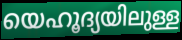
യെഹൂദ്യയിലുള്ള